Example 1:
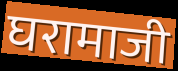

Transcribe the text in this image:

घरामाजी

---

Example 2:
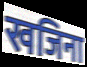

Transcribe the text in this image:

खजिना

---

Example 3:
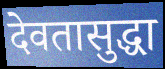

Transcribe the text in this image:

देवतासुद्धा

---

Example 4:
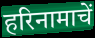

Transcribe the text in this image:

हरिनामाचें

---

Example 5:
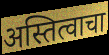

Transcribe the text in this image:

अस्तित्वाचा